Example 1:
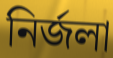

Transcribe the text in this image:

নির্জলা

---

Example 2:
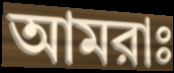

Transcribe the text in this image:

আমরাঃ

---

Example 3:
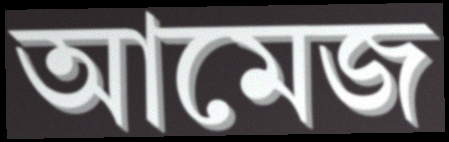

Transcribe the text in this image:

আমেজ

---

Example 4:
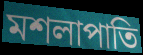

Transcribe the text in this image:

মশলাপাতি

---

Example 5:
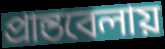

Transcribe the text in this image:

প্রান্তবেলায়